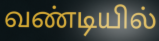
வண்டியில்